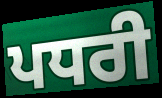
ਪਧਰੀ